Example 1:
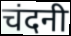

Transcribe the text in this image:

चंदनी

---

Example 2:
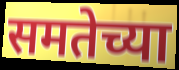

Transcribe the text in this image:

समतेच्या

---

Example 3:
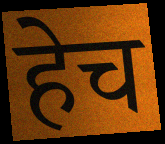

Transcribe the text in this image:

हेच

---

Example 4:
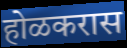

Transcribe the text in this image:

होळकरास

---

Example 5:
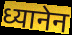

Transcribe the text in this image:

ध्यानेन